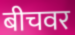
बीचवर